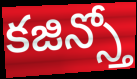
కజిన్స్తో